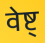
वेष्ट्